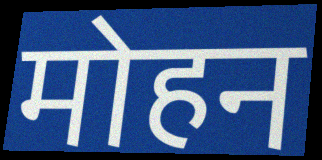
मोहन